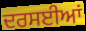
ਦਰਸਈਆਂ